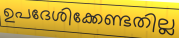
ഉപദേശിക്കേണ്ടതില്ല